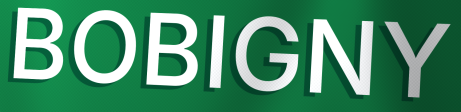
BOBIGNY